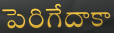
పెరిగేదాకా